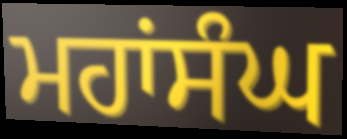
ਮਹਾਂਸੰਘ